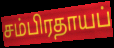
சம்பிரதாயப்